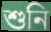
শুনি